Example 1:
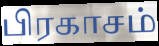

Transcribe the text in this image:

பிரகாசம்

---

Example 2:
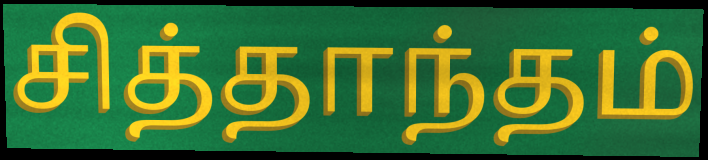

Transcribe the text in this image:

சித்தாந்தம்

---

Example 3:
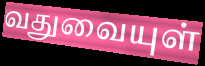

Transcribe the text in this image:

வதுவையுள்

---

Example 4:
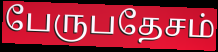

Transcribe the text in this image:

பேருபதேசம்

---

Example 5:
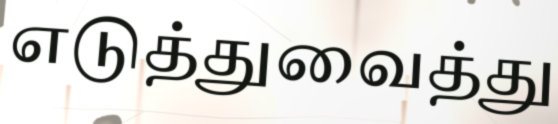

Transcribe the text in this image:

எடுத்துவைத்து